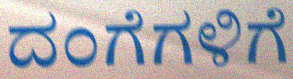
ದಂಗೆಗಳಿಗೆ